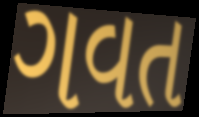
ગવત